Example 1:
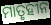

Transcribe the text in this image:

ମାତୃହୀନ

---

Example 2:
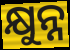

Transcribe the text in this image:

କ୍ଷୁନ୍ନ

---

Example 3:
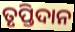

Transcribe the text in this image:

ତୃପ୍ତିଦାନ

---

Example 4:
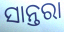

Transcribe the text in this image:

ସାନ୍ତରା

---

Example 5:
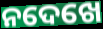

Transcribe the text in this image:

ନଦେଖେ